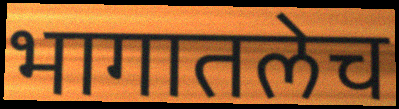
भागातलेच